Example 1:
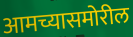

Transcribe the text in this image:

आमच्यासमोरील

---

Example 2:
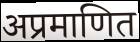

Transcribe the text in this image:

अप्रमाणित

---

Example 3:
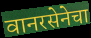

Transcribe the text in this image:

वानरसेनेचा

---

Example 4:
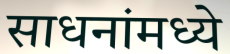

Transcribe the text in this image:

साधनांमध्ये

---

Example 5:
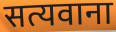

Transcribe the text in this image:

सत्यवाना